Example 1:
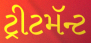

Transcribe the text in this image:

ટ્રીટમૅન્ટ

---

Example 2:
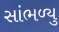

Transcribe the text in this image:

સાંભળ્યુ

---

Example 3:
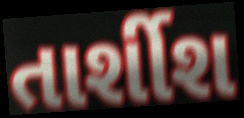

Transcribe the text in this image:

તાર્શીશ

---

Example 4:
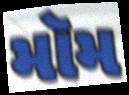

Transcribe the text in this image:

મૉમ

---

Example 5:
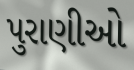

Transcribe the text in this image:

પુરાણીઓ